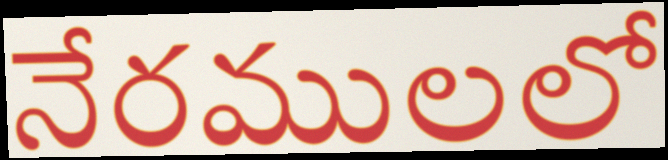
నేరములలో